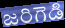
జరిగెడి